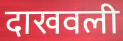
दाखवली